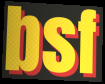
bsf